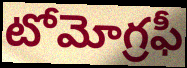
టోమోగ్రఫీ